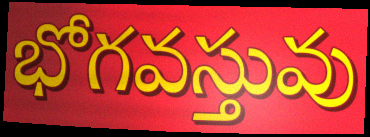
భోగవస్తువు